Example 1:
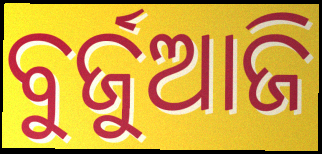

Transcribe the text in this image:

ବୁର୍ଜୁଆଜି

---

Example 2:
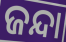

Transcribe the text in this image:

ଜନ୍ଦା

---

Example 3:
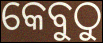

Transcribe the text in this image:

କେବୁଠୁ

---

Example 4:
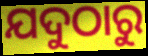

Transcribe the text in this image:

ଯଦୁଠାରୁ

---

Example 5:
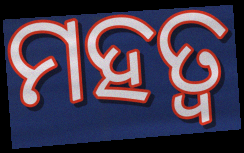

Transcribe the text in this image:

ମହତ୍ବ